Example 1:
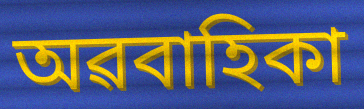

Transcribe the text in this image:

অৱবাহিকা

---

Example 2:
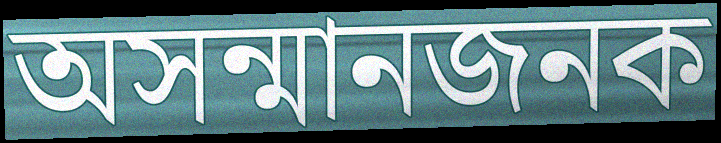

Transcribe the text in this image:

অসন্মানজনক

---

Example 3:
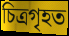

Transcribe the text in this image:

চিত্ৰগৃহত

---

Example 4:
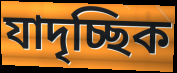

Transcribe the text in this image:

যাদৃচ্ছিক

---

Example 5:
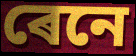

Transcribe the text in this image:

ৰেনে